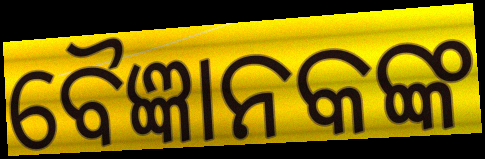
ବୈଜ୍ଞାନକଙ୍କ